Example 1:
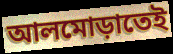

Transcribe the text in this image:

আলমোড়াতেই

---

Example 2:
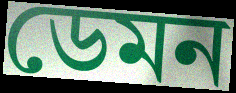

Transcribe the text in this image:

ডেমন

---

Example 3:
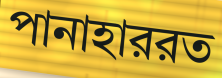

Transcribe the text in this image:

পানাহাররত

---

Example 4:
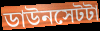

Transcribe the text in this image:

ডাউনসেটটা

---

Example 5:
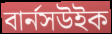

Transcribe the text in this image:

বার্নসউইক